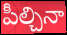
పీల్చినా